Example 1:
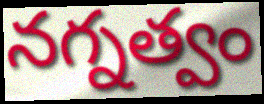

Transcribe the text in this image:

నగ్నత్వం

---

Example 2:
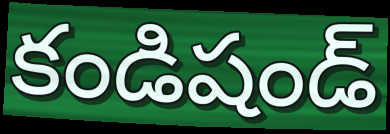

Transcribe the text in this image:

కండిషండ్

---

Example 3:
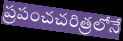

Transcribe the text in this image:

ప్రపంచచరిత్రలోనే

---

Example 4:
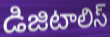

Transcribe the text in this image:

డిజిటాలిస్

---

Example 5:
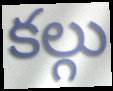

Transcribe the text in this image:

కల్గు